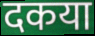
दकया